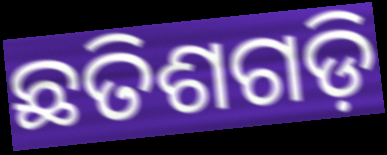
ଛତିଶଗଡ଼ି